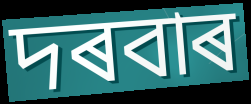
দৰবাৰ